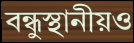
বন্ধুস্থানীয়ও